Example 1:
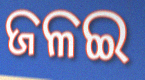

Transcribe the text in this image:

ଜଳଇ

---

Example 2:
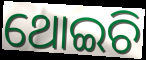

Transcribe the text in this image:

ଥୋଇଚି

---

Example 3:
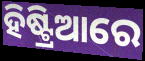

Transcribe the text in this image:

ହିଷ୍ଟ୍ରିଆରେ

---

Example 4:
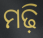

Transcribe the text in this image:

ମଢ଼ି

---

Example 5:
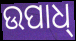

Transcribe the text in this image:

ଉପାଧ୍